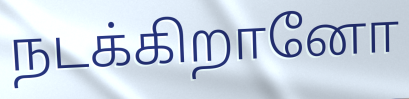
நடக்கிறானோ